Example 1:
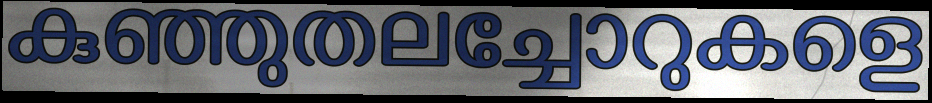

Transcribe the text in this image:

കുഞ്ഞുതലച്ചോറുകളെ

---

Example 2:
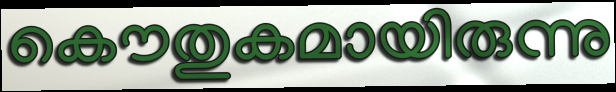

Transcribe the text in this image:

കൌതുകമായിരുന്നു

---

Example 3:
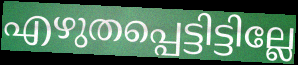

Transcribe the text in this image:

എഴുതപ്പെട്ടിട്ടില്ലേ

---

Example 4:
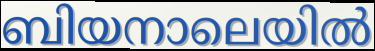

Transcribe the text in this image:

ബിയനാലെയിൽ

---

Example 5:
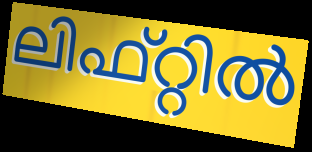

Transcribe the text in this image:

ലിഫ്റ്റിൽ